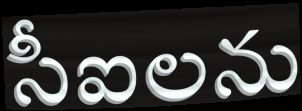
సీఐలను